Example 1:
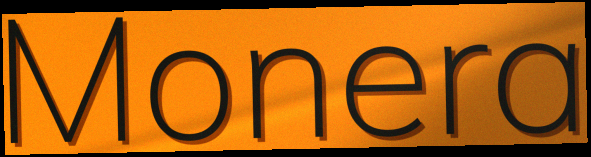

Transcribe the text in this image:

Monera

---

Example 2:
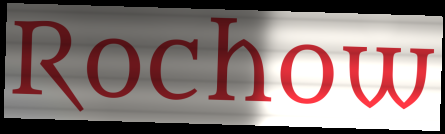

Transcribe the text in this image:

Rochow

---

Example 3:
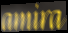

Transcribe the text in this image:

amira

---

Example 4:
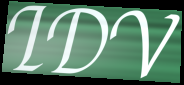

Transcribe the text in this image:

IDV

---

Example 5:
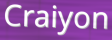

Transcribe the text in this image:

Craiyon